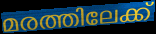
മരത്തിലേക്ക്